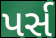
પર્સ